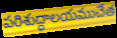
పరిశుద్ధాలయముచేత